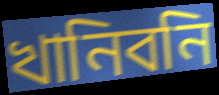
খানিবনি